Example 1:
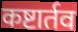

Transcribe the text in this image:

कष्टार्तव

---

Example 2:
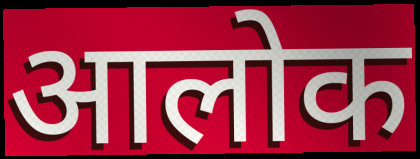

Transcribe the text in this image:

आलोक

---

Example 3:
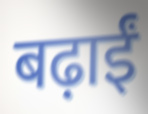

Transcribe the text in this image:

बढ़ाईं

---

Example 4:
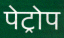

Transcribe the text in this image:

पेट्रोप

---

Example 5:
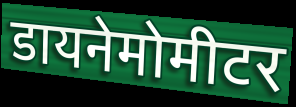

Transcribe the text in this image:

डायनेमोमीटर